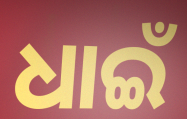
ଧାଇଁ